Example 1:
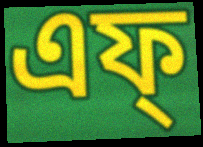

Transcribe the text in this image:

এফ্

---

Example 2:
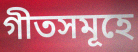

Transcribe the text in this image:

গীতসমূহে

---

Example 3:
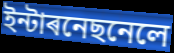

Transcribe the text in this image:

ইন্টাৰনেছনেলে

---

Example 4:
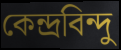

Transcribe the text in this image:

কেন্দ্ৰবিন্দু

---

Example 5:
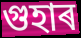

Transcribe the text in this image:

গুহাৰ